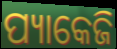
ପ୍ୟାକେଜି